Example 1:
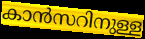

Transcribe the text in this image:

കാൻസറിനുള്ള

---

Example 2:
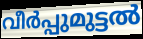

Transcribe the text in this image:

വീർപ്പുമുട്ടൽ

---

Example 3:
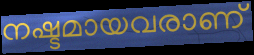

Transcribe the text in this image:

നഷ്ടമായവരാണ്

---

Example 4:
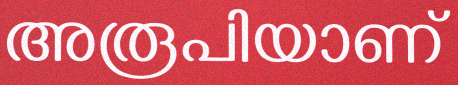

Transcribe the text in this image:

അരൂപിയാണ്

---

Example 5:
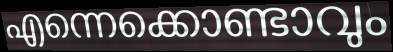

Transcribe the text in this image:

എന്നെക്കൊണ്ടാവും